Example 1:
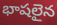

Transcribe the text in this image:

భాషలైన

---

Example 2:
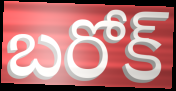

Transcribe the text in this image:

బరోక్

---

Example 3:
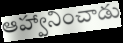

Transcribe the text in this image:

ఆహ్వానించాడు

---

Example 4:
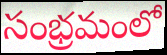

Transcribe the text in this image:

సంభ్రమంలో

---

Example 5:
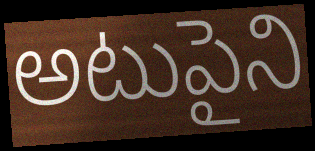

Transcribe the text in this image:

అటుపైని